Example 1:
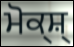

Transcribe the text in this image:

ਮੋਕ੍ਸ਼੍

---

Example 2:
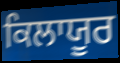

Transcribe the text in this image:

ਕਿਲਾਯੂਰ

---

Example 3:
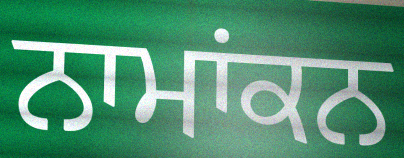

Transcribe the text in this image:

ਨਾਮਾਂਕਨ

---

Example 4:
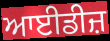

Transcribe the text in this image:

ਆਈਡੀਜ਼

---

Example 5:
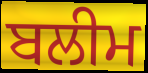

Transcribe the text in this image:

ਬਲੀਮ